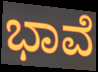
ಭಾವೆ